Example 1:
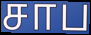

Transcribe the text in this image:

சாப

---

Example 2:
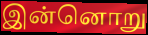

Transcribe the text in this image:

இன்னொறு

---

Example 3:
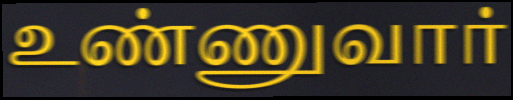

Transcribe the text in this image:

உண்ணுவார்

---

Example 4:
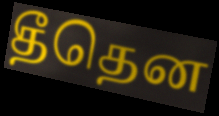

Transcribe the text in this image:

தீதென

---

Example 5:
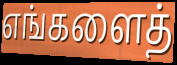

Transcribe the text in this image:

எங்களைத்